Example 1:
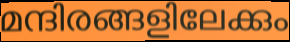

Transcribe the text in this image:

മന്ദിരങ്ങളിലേക്കും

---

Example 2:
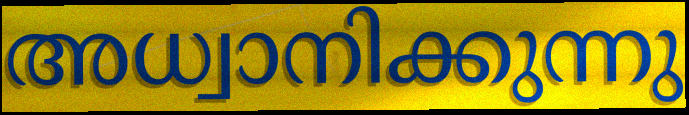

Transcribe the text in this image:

അധ്വാനിക്കുന്നു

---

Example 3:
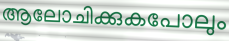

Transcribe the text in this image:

ആലോചിക്കുകപോലും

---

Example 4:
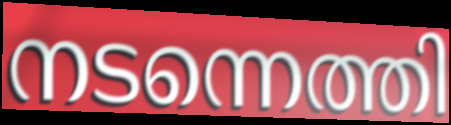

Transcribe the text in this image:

നടന്നെത്തി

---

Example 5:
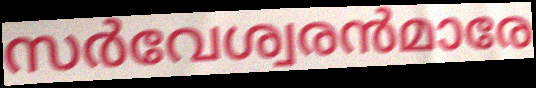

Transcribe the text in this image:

സർവേശ്വരൻമാരേ